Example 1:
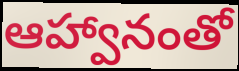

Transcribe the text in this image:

ఆహ్వానంతో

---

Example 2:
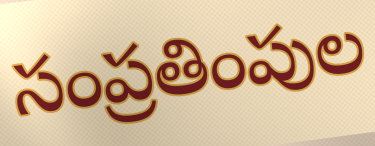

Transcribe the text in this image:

సంప్రతింపుల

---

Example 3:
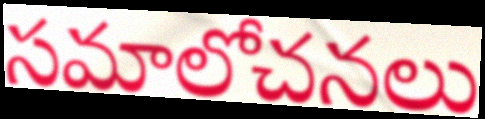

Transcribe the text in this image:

సమాలోచనలు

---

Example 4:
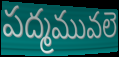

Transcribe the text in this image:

పద్మమువలె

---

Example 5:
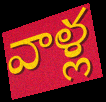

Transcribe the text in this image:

వాళ్ల